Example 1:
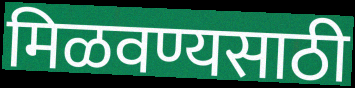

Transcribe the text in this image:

मिळवण्यसाठी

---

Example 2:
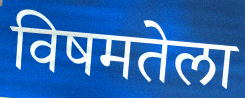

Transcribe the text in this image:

विषमतेला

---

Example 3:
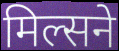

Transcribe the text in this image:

मिल्सने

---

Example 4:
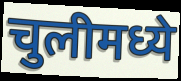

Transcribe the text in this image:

चुलीमध्ये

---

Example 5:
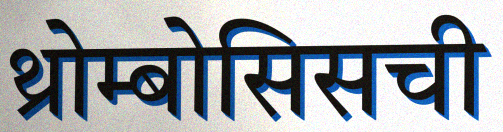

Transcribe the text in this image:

थ्रोम्बोसिसची